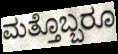
ಮತ್ತೊಬ್ಬರೂ